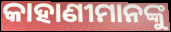
କାହାଣୀମାନଙ୍କୁ